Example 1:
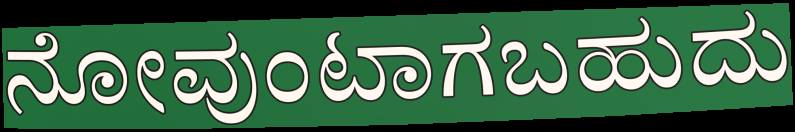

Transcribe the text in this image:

ನೋವುಂಟಾಗಬಹುದು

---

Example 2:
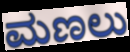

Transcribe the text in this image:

ಮಣಲು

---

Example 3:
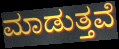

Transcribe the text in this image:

ಮಾಡುತ್ತವೆ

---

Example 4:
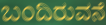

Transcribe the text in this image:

ಬಂದಿರುವನೆ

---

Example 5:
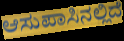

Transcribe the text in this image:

ಆಸುಪಾಸಿನಲ್ಲಿದೆ